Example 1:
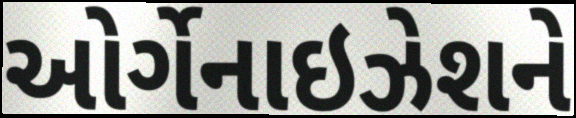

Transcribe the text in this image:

ઓર્ગેનાઇઝેશને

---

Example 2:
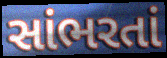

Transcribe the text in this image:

સાંભરતાં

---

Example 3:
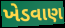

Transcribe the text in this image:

ખેડવાણ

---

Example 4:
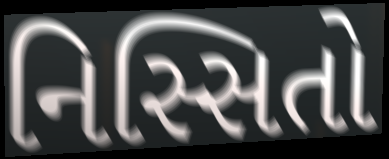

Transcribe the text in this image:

નિસ્સિતો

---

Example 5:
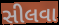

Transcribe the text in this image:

સીલવા